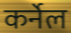
कर्नेल